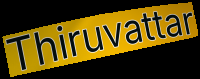
Thiruvattar